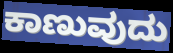
ಕಾಣುವುದು